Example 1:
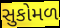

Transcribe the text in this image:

સુકોમળ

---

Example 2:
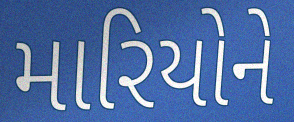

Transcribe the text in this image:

મારિયોને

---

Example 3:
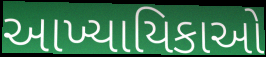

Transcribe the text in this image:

આખ્યાયિકાઓ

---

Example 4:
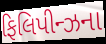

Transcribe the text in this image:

ફિલિપીન્ઝના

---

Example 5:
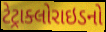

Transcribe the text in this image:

ટેટ્રાક્લોરાઇડનો